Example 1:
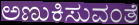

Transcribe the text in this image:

ಅಣುಕಿಸುವಂತೆ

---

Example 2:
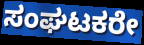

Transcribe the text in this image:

ಸಂಘಟಕರೇ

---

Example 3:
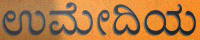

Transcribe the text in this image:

ಉಮೇದಿಯ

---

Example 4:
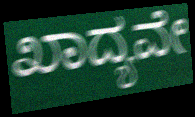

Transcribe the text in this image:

ಖಾದ್ಯವೇ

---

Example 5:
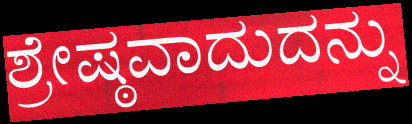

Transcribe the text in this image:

ಶ್ರೇಷ್ಠವಾದುದನ್ನು